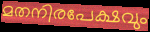
മതനിരപേക്ഷവും